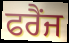
ਫਰੈਂਜ